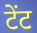
टेंट